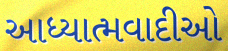
આધ્યાત્મવાદીઓ